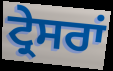
ਟ੍ਰੇਸਰਾਂ